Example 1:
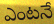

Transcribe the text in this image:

ఎంటనే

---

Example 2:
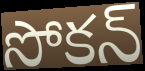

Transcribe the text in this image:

సోకన్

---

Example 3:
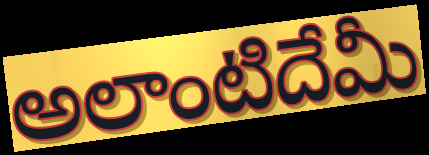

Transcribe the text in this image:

అలాంటిదేమీ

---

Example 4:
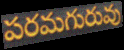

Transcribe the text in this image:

పరమగురువు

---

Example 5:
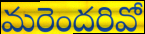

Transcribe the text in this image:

మరెందరివో